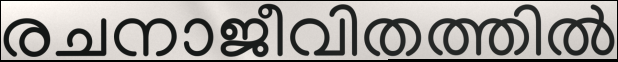
രചനാജീവിതത്തിൽ